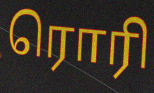
ரொரி